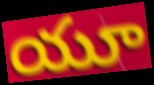
యూ